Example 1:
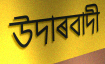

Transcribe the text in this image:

উদাৰবাদী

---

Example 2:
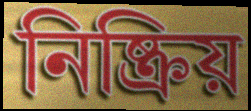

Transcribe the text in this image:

নিষ্ক্ৰিয়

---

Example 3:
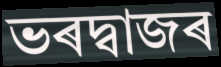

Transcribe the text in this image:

ভৰদ্বাজৰ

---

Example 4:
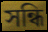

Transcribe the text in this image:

সন্ধি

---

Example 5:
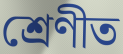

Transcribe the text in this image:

শ্ৰেণীত